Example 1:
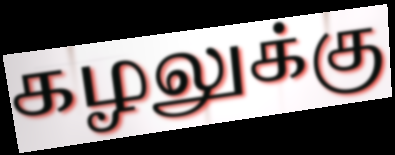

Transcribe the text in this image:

கழலுக்கு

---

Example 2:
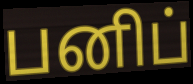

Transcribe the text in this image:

பனிப்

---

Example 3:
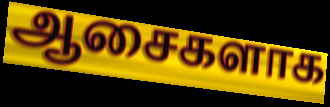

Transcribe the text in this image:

ஆசைகளாக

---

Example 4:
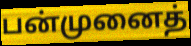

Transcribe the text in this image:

பன்முனைத்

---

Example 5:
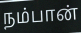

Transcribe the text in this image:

நம்பான்